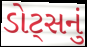
ડોટ્સનું